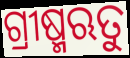
ଗ୍ରୀଷ୍ମଋତୁ